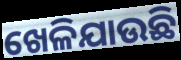
ଖେଳିଯାଉଛି